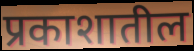
प्रकाशातील